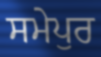
ਸਮੇਪੁਰ